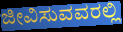
ಜೀವಿಸುವವರಲ್ಲಿ